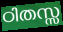
ഠിതസ്സ